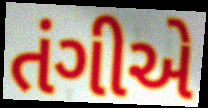
તંગીએ